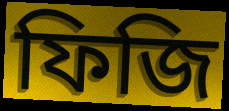
ফিজি